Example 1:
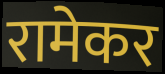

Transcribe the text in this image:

रामेकर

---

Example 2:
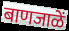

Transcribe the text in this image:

बाणजाळें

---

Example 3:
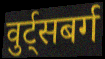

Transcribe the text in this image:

वुर्ट्सबर्ग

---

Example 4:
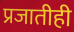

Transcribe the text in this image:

प्रजातीही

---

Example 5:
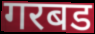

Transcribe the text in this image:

गरबड